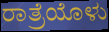
ರಾತ್ರೆಯೊಳು